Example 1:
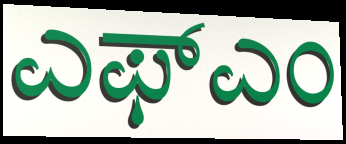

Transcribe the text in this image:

ಎಫ್ಎಂ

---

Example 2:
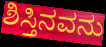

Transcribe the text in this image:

ಶಿಸ್ತಿನವನು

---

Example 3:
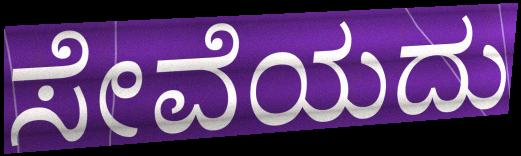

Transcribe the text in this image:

ಸೇವೆಯದು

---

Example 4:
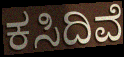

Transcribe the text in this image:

ಕಸಿದಿವೆ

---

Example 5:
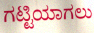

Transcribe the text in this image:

ಗಟ್ಟಿಯಾಗಲು